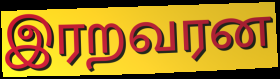
இரறவரன